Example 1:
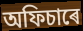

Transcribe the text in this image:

অফিচাৰে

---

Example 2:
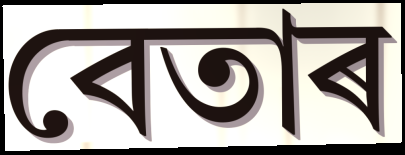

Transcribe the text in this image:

বেতাৰ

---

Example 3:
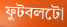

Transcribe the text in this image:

ফুটবলটো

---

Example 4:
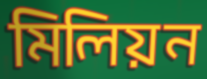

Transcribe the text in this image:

মিলিয়ন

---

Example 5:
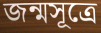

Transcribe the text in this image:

জন্মসূত্ৰে